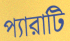
প্যারাটি